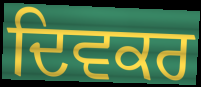
ਦਿਵਕਰ